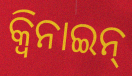
କ୍ୱିନାଇନ୍